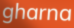
gharna